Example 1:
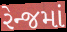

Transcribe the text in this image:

રેન્જમાં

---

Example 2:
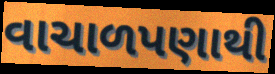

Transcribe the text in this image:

વાચાળપણાથી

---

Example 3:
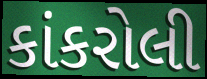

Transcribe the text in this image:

કાંકરોલી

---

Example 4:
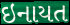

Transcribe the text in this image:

ઇનાયત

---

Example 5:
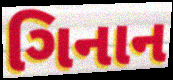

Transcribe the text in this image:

ગિનાન